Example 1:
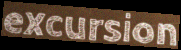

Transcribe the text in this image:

excursion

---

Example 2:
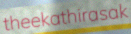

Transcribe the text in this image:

theekathirasak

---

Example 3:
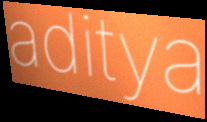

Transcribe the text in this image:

aditya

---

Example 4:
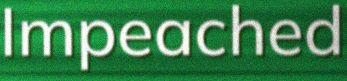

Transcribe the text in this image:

Impeached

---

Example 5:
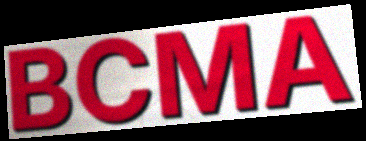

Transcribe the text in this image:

BCMA